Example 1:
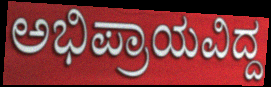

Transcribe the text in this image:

ಅಭಿಪ್ರಾಯವಿದ್ದ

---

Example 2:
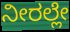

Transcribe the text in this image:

ನೀರಲ್ಲೇ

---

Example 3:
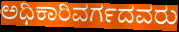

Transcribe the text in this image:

ಅಧಿಕಾರಿವರ್ಗದವರು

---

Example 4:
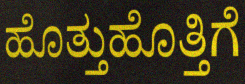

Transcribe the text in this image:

ಹೊತ್ತುಹೊತ್ತಿಗೆ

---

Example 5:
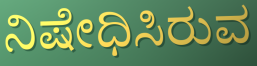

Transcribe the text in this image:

ನಿಷೇಧಿಸಿರುವ